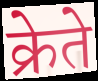
क्रेते